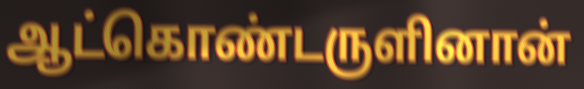
ஆட்கொண்டருளினான்